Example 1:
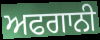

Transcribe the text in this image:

ਅਫਗਾਨੀ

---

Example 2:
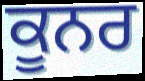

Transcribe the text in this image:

ਕੂਨਰ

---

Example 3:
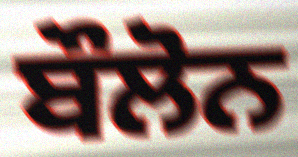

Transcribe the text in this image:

ਬੌਲੋਨ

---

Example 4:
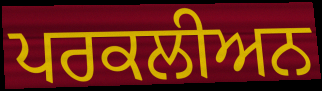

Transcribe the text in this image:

ਪਰਕਲੀਅਨ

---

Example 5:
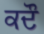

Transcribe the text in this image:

ਕਦੌ